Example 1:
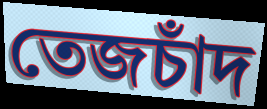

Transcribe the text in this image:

তেজচাঁদ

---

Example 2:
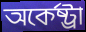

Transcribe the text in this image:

অর্কেষ্ট্রা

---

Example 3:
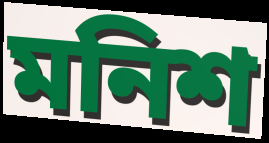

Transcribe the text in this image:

মনিশ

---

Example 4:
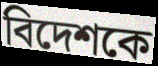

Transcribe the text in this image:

বিদেশকে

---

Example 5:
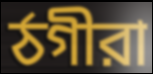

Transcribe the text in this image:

ঠগীরা